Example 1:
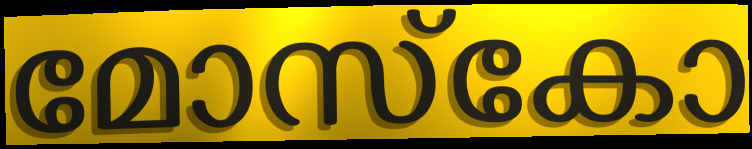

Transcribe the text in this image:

മോസ്‌കോ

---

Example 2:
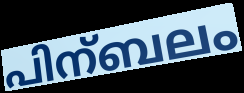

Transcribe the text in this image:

പിന്ബലം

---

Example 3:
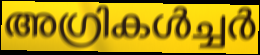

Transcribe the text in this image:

അഗ്രികൾച്ചർ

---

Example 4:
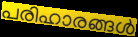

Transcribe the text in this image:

പരിഹാരങ്ങൾ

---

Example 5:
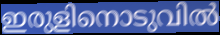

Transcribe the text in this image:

ഇരുളിനൊടുവിൽ